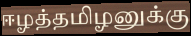
ஈழத்தமிழனுக்கு